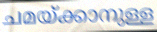
ചമയ്ക്കാനുള്ള